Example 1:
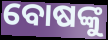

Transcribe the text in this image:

ବୋଷଙ୍କୁ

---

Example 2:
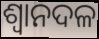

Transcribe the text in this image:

ଶ୍ୱାନଦଳ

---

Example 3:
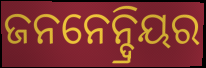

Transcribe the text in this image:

ଜନନେନ୍ଦ୍ରିୟର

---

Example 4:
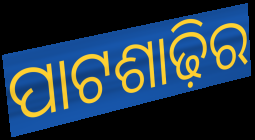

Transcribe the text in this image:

ପାଟଶାଢ଼ିର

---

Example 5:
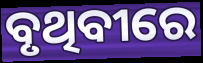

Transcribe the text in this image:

ବୃଥିବୀରେ